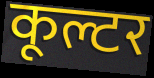
कूल्‍टर